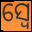
ସ୍ୱେ